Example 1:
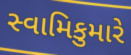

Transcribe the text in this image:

સ્વામિકુમારે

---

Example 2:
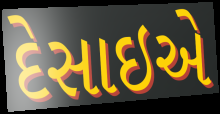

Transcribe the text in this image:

દેસાઇએ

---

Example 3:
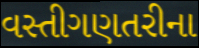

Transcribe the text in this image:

વસ્તીગણતરીના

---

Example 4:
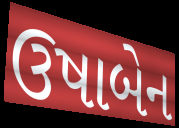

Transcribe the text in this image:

ઉષાબેન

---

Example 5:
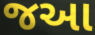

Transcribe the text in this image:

જઆ